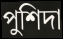
পুশিদা